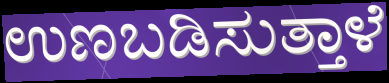
ಉಣಬಡಿಸುತ್ತಾಳೆ